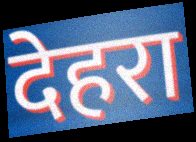
देहरा